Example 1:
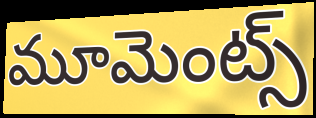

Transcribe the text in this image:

మూమెంట్స్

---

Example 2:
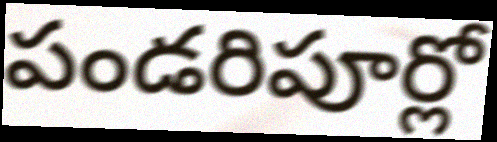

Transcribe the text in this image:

పండరిపూర్లో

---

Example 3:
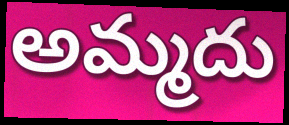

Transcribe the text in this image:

అమ్మదు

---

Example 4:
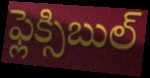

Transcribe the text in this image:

ఫ్లెక్సిబుల్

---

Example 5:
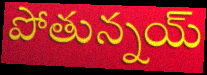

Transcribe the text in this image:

పోతున్నయ్